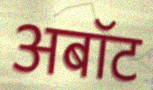
अबॉट